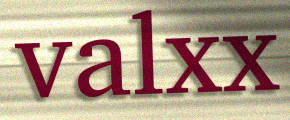
valxx